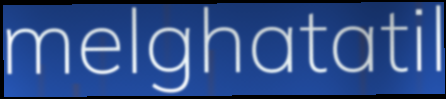
melghatatil